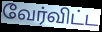
வேர்விட்ட